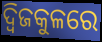
ଦ୍ୱିଜକୁଳରେ